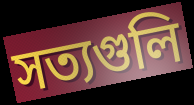
সত্যগুলি